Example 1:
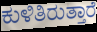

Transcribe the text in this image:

ಕುಳಿತಿರುತ್ತಾರೆ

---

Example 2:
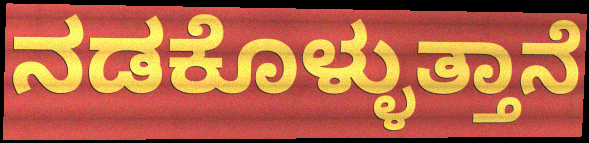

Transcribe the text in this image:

ನಡಕೊಳ್ಳುತ್ತಾನೆ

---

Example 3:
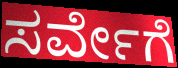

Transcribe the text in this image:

ಸರ್ವೇಗೆ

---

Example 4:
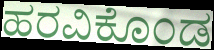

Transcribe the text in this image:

ಹರವಿಕೊಂಡ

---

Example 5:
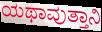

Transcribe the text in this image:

ಯಥಾವುತ್ತಾನಿ